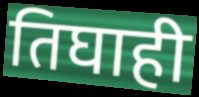
तिघाही